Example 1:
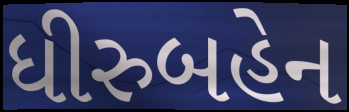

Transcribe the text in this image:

ધીરુબહેન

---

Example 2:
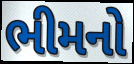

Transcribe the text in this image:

ભીમનો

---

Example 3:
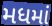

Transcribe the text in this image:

મધમાં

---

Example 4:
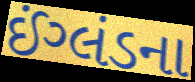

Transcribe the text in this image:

ઈંગ્લંડના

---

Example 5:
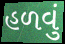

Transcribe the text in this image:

હળવું